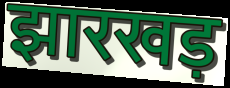
झारखड़